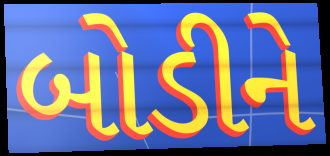
બોડીને